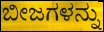
ಬೀಜಗಳನ್ನು